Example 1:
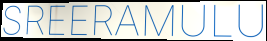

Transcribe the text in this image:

SREERAMULU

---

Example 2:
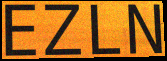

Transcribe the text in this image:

EZLN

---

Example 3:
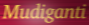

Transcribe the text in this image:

Mudiganti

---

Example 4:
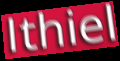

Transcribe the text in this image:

Ithiel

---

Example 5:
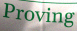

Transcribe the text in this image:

Proving